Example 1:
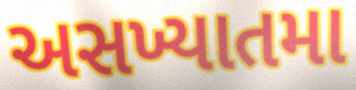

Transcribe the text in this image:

અસખ્યાતમા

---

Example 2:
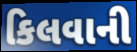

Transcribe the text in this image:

કિલવાની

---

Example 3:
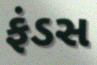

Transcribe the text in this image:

ફંડસ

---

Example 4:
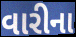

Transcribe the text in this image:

વારીના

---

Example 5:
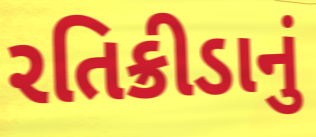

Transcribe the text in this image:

રતિક્રીડાનું